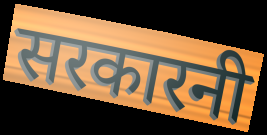
सरकारनी